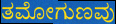
ತಮೋಗುಣವು